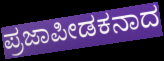
ಪ್ರಜಾಪೀಡಕನಾದ